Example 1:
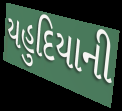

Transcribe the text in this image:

યહુદિયાની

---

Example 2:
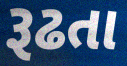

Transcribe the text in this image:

રૂઢતા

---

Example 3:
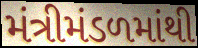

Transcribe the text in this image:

મંત્રીમંડળમાંથી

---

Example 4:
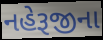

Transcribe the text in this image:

નહેરૂજીના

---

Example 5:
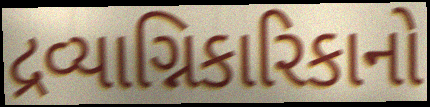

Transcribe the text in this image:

દ્રવ્યાગ્નિકારિકાનો